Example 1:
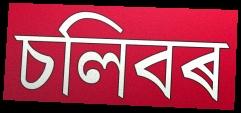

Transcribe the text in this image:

চলিবৰ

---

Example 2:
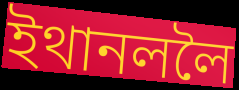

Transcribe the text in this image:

ইথানললৈ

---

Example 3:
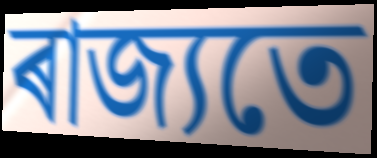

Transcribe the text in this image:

ৰাজ্যতে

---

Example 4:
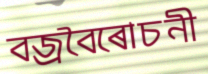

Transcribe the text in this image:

বজ্ৰবৈৰোচনী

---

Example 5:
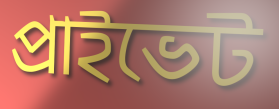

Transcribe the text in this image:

প্ৰাইভেট